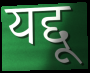
यद्दू